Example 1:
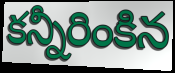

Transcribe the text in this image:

కన్నీరింకిన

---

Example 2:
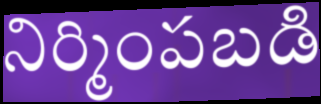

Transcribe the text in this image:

నిర్మింపబడి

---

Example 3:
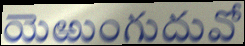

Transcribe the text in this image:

యెఱుంగుదువో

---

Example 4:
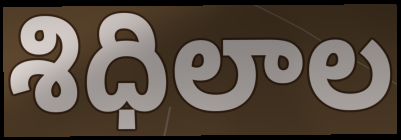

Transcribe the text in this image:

శిధిలాల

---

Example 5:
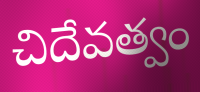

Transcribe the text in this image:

చిదేవత్వం